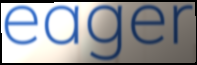
eager